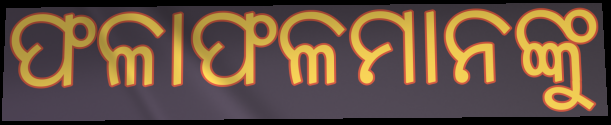
ଫଳାଫଳମାନଙ୍କୁ